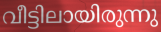
വീട്ടിലായിരുന്നു